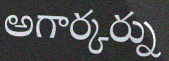
అగార్కర్ను